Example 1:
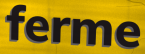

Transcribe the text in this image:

ferme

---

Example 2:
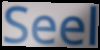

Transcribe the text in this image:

Seel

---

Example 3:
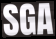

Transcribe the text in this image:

SGA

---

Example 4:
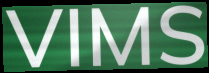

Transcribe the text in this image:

VIMS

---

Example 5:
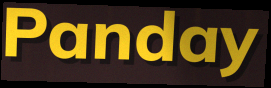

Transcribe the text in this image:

Panday